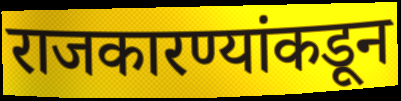
राजकारण्यांकडून